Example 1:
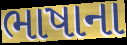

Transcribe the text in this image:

ભાષાના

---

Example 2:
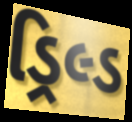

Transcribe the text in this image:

ડ્રિલ્ડ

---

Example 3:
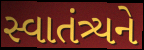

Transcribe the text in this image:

સ્વાતંત્ર્યને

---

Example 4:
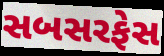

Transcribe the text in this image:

સબસરફેસ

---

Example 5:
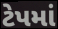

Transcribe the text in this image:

ટેપમાં